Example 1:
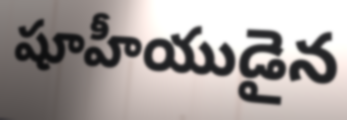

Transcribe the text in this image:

షూహీయుడైన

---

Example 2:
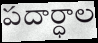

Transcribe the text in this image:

పదార్ధాల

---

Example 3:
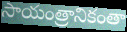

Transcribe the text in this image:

సాయంత్రానికంతా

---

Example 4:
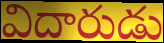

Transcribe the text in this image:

విదారుడు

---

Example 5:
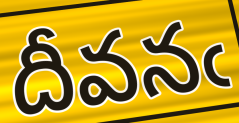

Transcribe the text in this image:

దీవనఁ